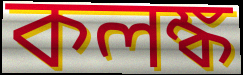
কলঙ্ক